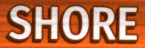
SHORE